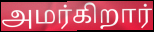
அமர்கிறார்